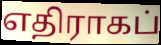
எதிராகப்